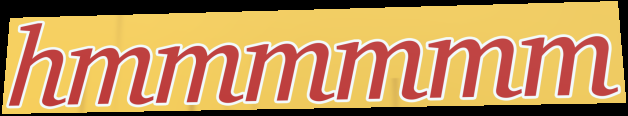
hmmmmmm